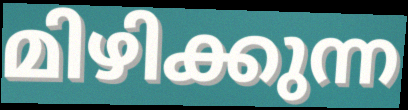
മിഴിക്കുന്ന